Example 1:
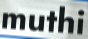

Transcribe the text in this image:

muthi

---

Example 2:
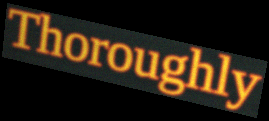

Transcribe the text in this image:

Thoroughly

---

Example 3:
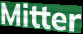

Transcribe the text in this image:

Mitter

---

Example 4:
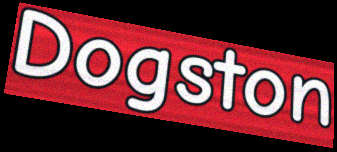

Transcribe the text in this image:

Dogston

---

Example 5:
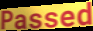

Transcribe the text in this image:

Passed